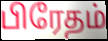
பிரேதம்